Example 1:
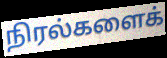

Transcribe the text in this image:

நிரல்களைக்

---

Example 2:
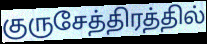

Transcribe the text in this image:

குருசேத்திரத்தில்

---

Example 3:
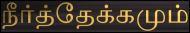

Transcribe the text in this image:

நீர்த்தேக்கமும்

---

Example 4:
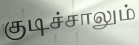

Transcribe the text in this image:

குடிச்சாலும்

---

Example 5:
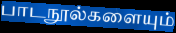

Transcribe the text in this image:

பாடநூல்களையும்